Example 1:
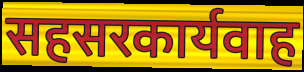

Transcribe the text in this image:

सहसरकार्यवाह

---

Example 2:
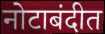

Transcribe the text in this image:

नोटाबंदीत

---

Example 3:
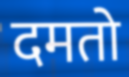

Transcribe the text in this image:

दमतो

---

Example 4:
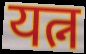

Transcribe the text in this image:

यत्न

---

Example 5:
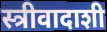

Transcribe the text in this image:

स्त्रीवादाशी